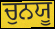
ਚੁਨਯੂ